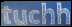
tuchh